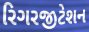
રિગરજીટેશન